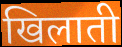
खिलाती